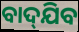
ବାଦ୍‌ଯିବ